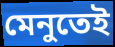
মেনুতেই